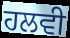
ਹਲਵੀ